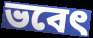
ভবেৎ